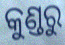
କୁଣ୍ଡରୁ